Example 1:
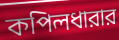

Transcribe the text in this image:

কপিলধারার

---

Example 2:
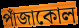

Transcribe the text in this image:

পাঁজাকোল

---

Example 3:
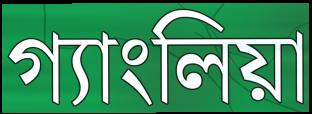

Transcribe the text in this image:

গ্যাংলিয়া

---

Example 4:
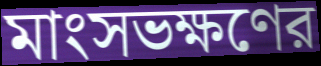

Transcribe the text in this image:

মাংসভক্ষণের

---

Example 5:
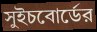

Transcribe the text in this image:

সুইচবোর্ডের